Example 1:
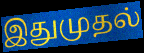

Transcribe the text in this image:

இதுமுதல்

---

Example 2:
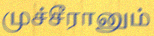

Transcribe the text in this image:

முச்சீரானும்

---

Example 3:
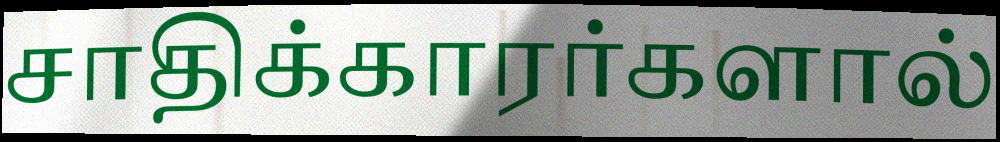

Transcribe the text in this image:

சாதிக்காரர்களால்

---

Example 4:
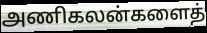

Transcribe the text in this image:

அணிகலன்களைத்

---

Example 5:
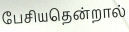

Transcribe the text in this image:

பேசியதென்றால்